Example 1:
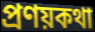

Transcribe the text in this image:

প্রণয়কথা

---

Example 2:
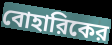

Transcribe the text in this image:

বোহারিকের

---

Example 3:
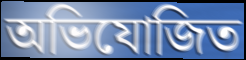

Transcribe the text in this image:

অভিযোজিত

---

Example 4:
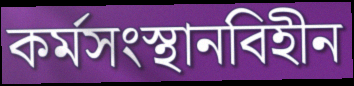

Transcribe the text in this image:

কর্মসংস্থানবিহীন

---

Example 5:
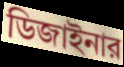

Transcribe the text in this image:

ডিজাইনার